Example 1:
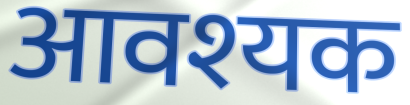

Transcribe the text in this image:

आवश्‍यक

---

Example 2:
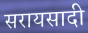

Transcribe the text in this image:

सरायसादी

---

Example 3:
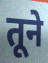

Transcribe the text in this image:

तूने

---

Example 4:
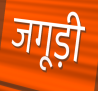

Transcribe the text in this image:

जगूड़ी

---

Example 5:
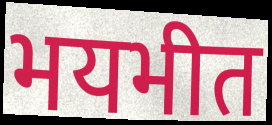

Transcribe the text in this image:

भयभीत